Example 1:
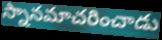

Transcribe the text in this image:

స్నానమాచరించాడు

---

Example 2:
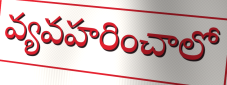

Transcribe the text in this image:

వ్యవహరించాలో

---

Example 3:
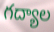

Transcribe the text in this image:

గద్యాల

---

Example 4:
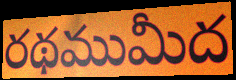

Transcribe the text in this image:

రథముమీద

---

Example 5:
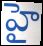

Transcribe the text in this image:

హై